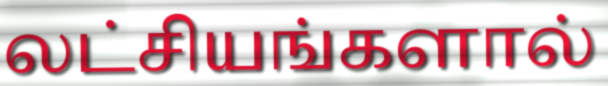
லட்சியங்களால்